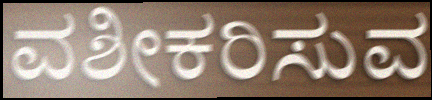
ವಶೀಕರಿಸುವ